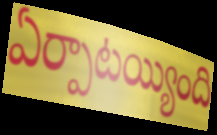
ఏర్పాటయ్యింది